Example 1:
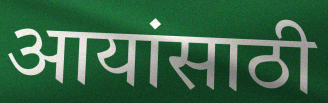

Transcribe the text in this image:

आयांसाठी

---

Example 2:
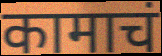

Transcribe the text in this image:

कामाचं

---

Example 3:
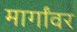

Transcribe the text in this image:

मार्गांवर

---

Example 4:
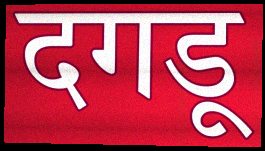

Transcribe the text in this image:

दगडू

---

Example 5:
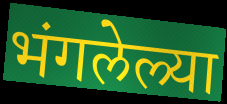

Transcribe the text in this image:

भंगलेल्या